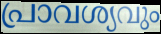
പ്രാവശ്യവും